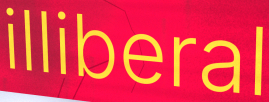
illiberal